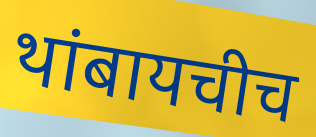
थांबायचीच